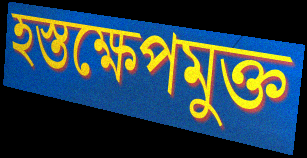
হস্তক্ষেপমুক্ত